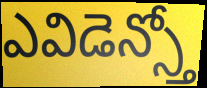
ఎవిడెన్స్తో